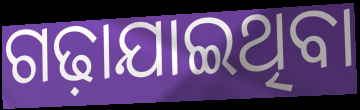
ଗଢ଼ାଯାଇଥିବା